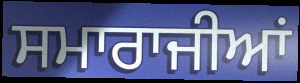
ਸਮਾਰਾਜੀਆਂ